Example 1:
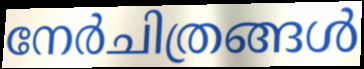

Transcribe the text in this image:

നേർചിത്രങ്ങൾ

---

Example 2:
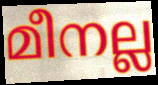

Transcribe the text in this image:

മീനല്ല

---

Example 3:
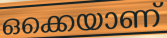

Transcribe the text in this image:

ഒക്കെയാണ്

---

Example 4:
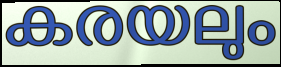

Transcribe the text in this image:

കരയലും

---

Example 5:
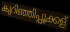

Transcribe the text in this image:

കുറിഞ്ഞിപ്പൂക്കള്